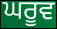
ਘਰੂਵ